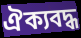
ঐক্যবদ্ধ